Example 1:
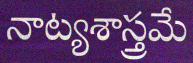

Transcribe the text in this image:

నాట్యశాస్త్రమే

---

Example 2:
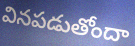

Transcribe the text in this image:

వినపడుతోందా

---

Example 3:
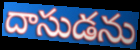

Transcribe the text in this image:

దాసుడను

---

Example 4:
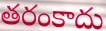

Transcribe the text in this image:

తరంకాదు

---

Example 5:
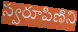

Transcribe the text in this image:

స్వరూపిణిని